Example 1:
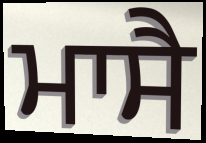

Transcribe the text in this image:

ਮਾਸੈ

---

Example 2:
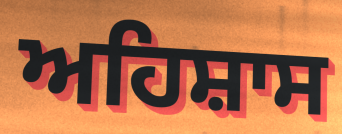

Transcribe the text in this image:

ਅਹਿਸ਼ਾਸ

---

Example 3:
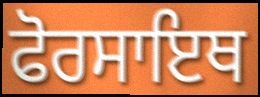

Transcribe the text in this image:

ਫੋਰਸਾਇਥ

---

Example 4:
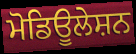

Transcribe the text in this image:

ਮੋਡਿਊਲੇਸ਼ਨ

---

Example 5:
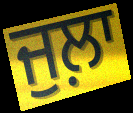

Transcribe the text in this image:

ਜੁਲ਼ਾ